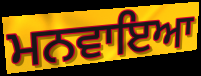
ਮਨਵਾਇਆ